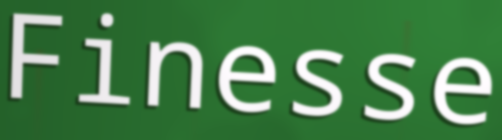
Finesse